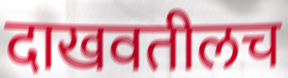
दाखवतीलच